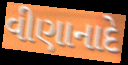
વીણાનાદે